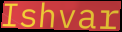
Ishvar